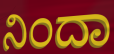
ನಿಂದಾ